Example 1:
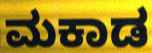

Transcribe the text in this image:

ಮಕಾಡ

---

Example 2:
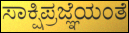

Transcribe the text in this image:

ಸಾಕ್ಷಿಪ್ರಜ್ಞೆಯಂತೆ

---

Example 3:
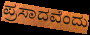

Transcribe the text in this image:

ಪ್ರಸಾದವೆಂದು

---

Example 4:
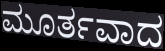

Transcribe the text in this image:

ಮೂರ್ತವಾದ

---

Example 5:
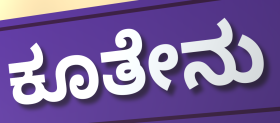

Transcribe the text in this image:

ಕೂತೇನು